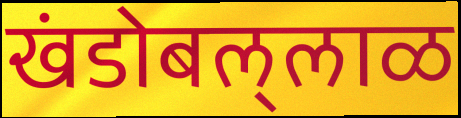
खंडोबल्लाळ